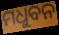
ମଧୁବନ